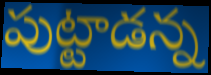
పుట్టాడన్న